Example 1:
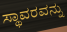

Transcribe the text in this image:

ಸ್ಥಾವರವನ್ನು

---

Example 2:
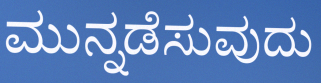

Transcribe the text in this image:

ಮುನ್ನಡೆಸುವುದು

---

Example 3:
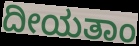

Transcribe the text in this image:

ದೀಯತಾಂ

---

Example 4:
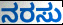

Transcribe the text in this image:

ನರಸು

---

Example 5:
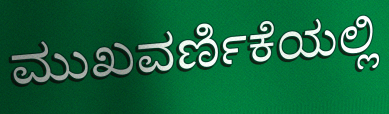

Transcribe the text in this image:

ಮುಖವರ್ಣಿಕೆಯಲ್ಲಿ